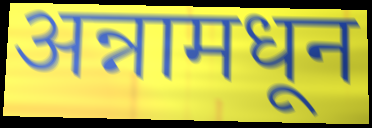
अन्नामधून